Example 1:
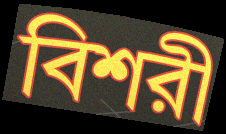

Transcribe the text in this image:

বিশরী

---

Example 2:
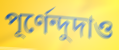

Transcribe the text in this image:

পূর্ণেন্দুদাও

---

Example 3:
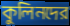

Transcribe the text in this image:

কুলিনদের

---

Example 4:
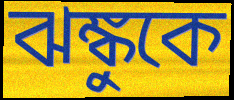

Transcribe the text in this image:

ঝঙ্কুকে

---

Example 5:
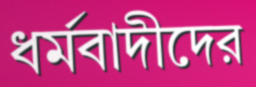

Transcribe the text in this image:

ধর্মবাদীদের